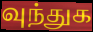
வுந்துக